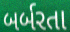
બર્બરતા